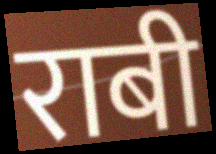
राबी